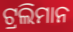
ଟ୍ରଲିମାନ